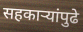
सहकाऱ्यांपुढे